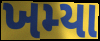
ખમ્યા